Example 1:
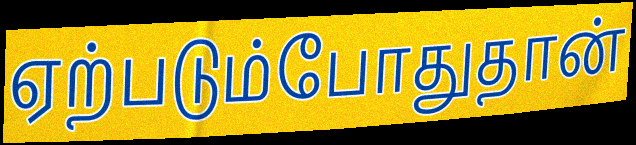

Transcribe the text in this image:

ஏற்படும்போதுதான்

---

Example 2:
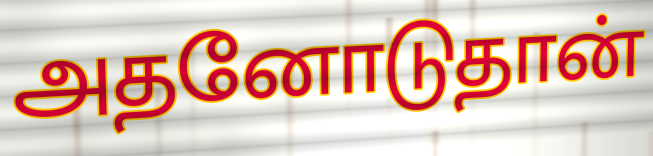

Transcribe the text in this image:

அதனோடுதான்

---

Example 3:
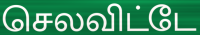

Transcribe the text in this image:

செலவிட்டே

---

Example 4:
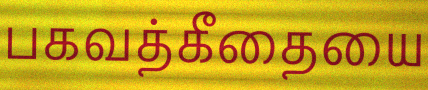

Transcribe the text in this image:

பகவத்கீதையை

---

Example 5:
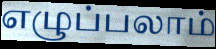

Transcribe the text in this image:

எழுப்பலாம்